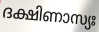
ദക്ഷിണാസ്യഃ